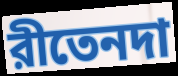
রীতেনদা